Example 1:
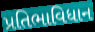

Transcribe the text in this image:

પ્રતિભાવિધાન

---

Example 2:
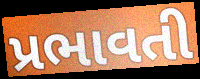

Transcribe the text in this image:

પ્રભાવતી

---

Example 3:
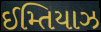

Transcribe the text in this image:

ઈમ્તિયાઝ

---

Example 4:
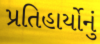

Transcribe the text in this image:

પ્રતિહાર્યોનું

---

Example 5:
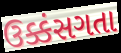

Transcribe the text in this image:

ઉક્કંસગતા